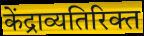
केंद्राव्यतिरिक्त